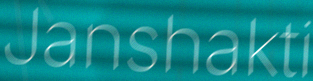
Janshakti